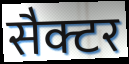
सैक्टर